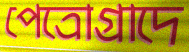
পেত্রোগ্রাদে